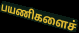
பயணிகளைச்